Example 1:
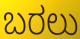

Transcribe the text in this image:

ಬರಲು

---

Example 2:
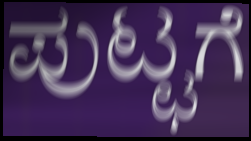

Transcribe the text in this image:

ಪುಟ್ಟಗೆ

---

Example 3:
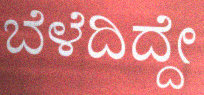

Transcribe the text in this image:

ಬೆಳೆದಿದ್ದೇ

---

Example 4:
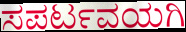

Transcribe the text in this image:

ಸಪರ್ಟವಯಗಿ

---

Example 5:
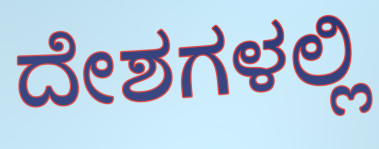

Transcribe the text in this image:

ದೇಶಗಳಲ್ಲಿ